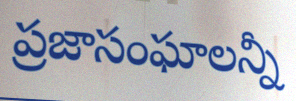
ప్రజాసంఘాలన్నీ